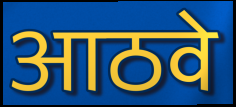
आठवे